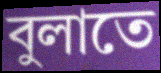
বুলাতে